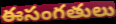
ఈసంగతులు